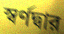
স্বর্ণদ্বার